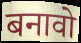
बनावो